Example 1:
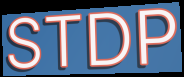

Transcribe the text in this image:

STDP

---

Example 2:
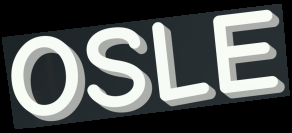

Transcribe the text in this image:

OSLE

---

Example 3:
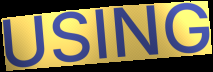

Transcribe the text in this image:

USING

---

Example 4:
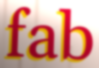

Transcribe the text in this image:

fab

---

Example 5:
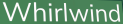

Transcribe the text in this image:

Whirlwind